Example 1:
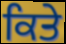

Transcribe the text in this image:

ਕਿਤੇ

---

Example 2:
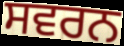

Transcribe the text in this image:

ਸਵਰਨ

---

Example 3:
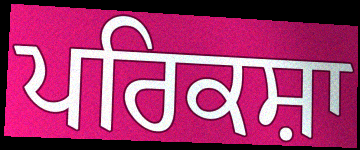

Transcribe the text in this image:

ਪਰਿਕਸ਼ਾ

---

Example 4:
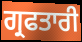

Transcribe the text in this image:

ਗ੍ਰਫਤਾਰੀ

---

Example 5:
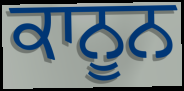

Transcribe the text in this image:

ਕਾਨੂਨ